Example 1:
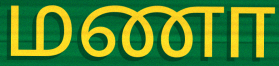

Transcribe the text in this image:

மணா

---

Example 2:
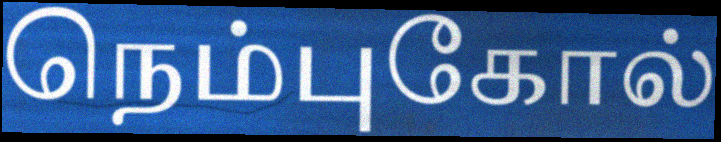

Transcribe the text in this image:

நெம்புகோல்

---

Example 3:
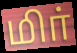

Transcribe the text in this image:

மிர்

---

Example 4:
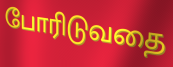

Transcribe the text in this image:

போரிடுவதை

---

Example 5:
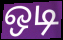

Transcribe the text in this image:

ஒடி